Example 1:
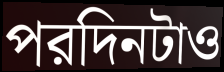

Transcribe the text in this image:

পরদিনটাও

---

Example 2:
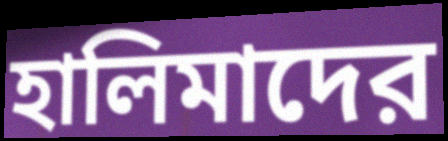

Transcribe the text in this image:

হালিমাদের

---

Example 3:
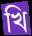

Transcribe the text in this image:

খি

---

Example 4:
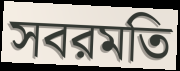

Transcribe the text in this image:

সবরমতি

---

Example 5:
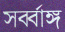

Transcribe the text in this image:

সর্ব্বাঙ্গ